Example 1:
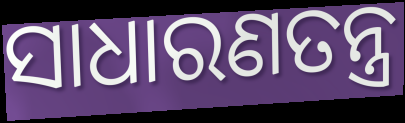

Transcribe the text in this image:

ସାଧାରଣତନ୍ତ୍ର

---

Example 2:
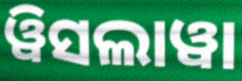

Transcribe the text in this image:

ୱିସଲାୱା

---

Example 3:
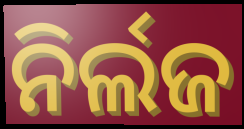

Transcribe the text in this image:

ନିର୍ଲଜ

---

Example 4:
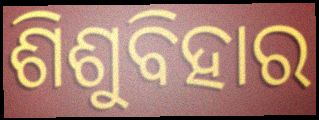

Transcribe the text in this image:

ଶିଶୁବିହାର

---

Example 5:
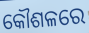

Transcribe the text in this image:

କୌଶଳରେ